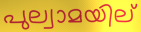
പുല്വാമയില്